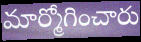
మార్మోగించారు